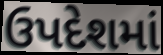
ઉપદેશમાં